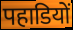
पहाडियों